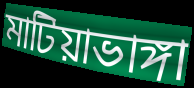
মাটিয়াভাঙ্গা